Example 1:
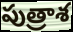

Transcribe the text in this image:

పుత్రాశ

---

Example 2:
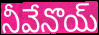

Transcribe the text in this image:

నీవేనొయ్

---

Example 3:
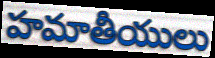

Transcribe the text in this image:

హమాతీయులు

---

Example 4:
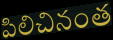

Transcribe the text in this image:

పిలిచినంత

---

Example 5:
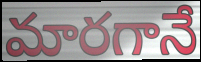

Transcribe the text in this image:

మారగానే